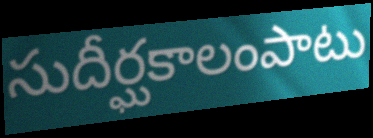
సుదీర్ఘకాలంపాటు